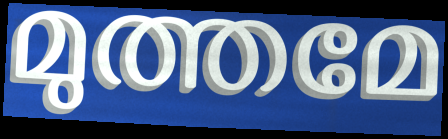
മുത്തമേ